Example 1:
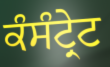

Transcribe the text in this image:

ਕੰਸੰਟ੍ਰੇਟ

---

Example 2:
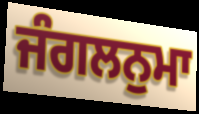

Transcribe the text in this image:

ਜੰਗਲਨੁਮਾ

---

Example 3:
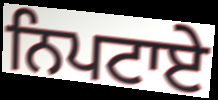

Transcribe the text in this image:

ਨਿਪਟਾਏ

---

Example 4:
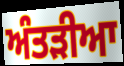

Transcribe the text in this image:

ਅੰਤੜੀਆ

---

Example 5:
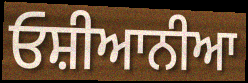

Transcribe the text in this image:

ਓਸ਼ੀਆਨੀਆ